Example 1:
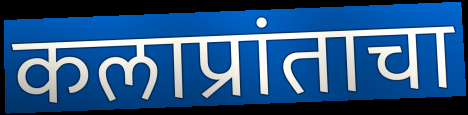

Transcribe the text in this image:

कलाप्रांताचा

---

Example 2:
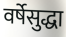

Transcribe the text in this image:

वर्षेसुद्धा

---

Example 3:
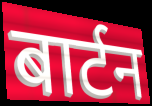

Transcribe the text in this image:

बार्टन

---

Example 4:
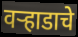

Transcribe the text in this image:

वऱ्हाडाचे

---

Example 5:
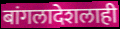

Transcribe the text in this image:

बांगलादेशलाही